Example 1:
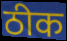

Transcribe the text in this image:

ठीक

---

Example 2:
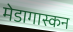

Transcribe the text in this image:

मेडागास्कन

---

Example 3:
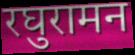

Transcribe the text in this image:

रघुरामन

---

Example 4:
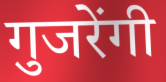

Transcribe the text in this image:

गुजरेंगी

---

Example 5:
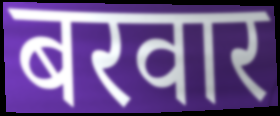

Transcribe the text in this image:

बरवार